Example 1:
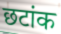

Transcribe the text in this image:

छटांक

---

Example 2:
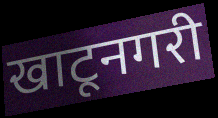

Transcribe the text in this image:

खाटूनगरी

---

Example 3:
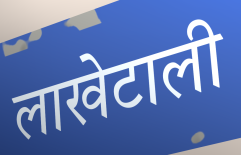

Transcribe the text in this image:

लाखेटाली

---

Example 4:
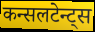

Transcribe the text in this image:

कन्सलटेन्ट्स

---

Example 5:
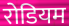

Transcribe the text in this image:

रोडियम